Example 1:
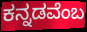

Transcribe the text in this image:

ಕನ್ನಡವೆಂಬ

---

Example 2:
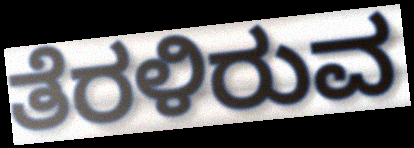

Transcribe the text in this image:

ತೆರಳಿರುವ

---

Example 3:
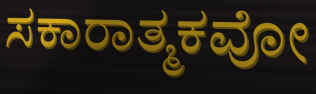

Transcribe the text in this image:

ಸಕಾರಾತ್ಮಕವೋ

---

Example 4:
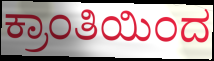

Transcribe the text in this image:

ಕ್ರಾಂತಿಯಿಂದ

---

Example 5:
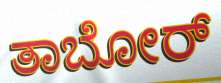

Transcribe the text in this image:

ತಾಬೋರ್